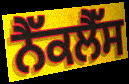
ਨੈੱਕਲੈੱਸ